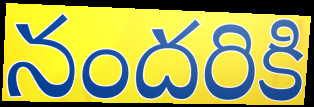
నందరికి